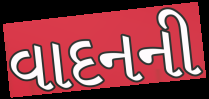
વાદનની